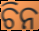
ଚିନ